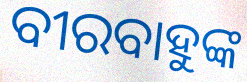
ବୀରବାହୁଙ୍କ